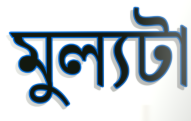
মুল্যটা